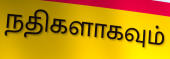
நதிகளாகவும்